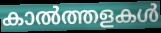
കാൽത്തളകൾ